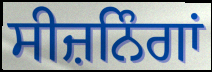
ਸੀਜ਼ਨਿੰਗਾਂ